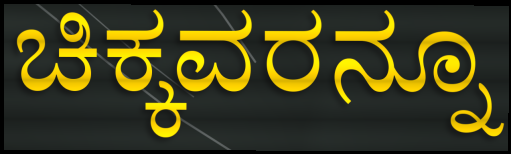
ಚಿಕ್ಕವರನ್ನೂ